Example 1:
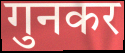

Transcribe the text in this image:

गुनकर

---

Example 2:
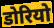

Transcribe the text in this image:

डोरियो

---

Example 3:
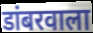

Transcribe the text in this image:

डांबरवाला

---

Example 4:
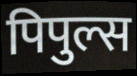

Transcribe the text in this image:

पिपुल्स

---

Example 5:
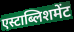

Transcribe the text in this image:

एस्टाब्लिशमेंट